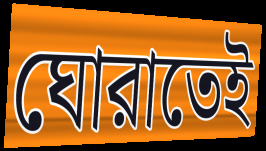
ঘোরাতেই